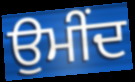
ਉਮੀਂਦ